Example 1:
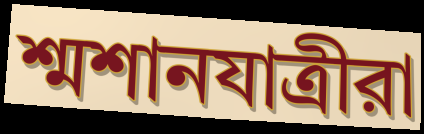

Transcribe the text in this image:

শ্মশানযাত্রীরা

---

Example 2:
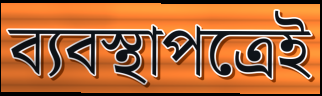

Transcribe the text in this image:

ব্যবস্থাপত্রেই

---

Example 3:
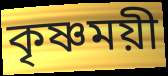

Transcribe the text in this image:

কৃষ্ণময়ী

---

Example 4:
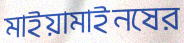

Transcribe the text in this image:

মাইয়ামাইনষের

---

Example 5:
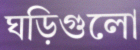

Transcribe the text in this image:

ঘড়িগুলো